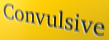
Convulsive